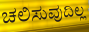
ಚಲಿಸುವುದಿಲ್ಲ